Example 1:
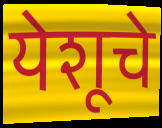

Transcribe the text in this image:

येशूचे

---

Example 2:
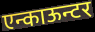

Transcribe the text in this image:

एन्काऊन्टर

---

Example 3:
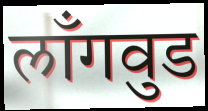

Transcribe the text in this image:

लाँगवुड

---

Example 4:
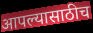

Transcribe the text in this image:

आपल्यासाठीच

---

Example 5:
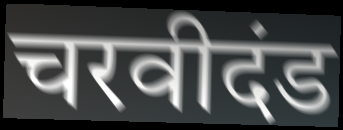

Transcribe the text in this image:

चरवीदंड